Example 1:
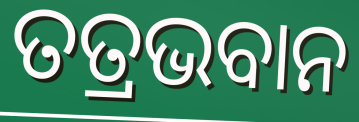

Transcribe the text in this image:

ତତ୍ରଭବାନ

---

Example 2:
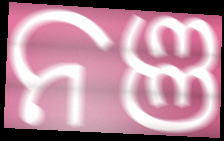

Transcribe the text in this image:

ନଞ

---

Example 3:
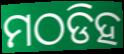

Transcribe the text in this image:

ମଠଡିହ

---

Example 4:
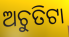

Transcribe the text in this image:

ଅଚୁତିଟା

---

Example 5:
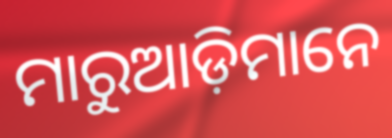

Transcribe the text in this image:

ମାରୁଆଡ଼ିମାନେ